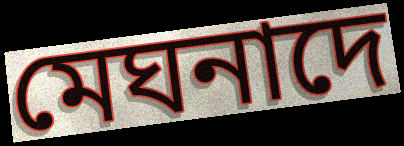
মেঘনাদে